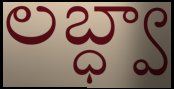
లబ్ధ్వా